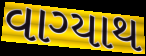
વાગ્યાથ